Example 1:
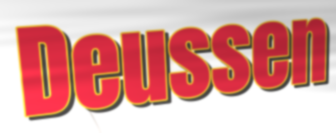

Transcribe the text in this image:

Deussen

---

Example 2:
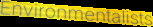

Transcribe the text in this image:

Environmentalists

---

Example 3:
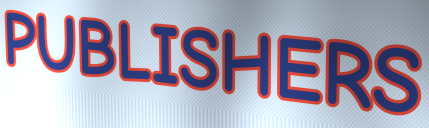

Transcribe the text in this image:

PUBLISHERS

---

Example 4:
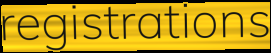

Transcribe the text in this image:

registrations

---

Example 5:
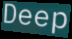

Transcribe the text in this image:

Deep